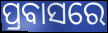
ପ୍ରବାସରେ